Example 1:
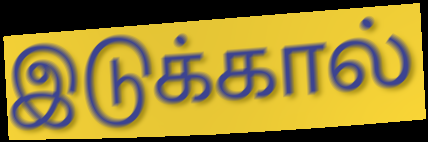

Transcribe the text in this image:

இடுக்கால்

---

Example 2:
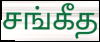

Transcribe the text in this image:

சங்கீத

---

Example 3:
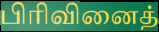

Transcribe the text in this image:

பிரிவினைத்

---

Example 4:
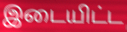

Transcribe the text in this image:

இடையிட்ட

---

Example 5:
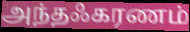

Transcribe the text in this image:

அந்தஃகரணம்